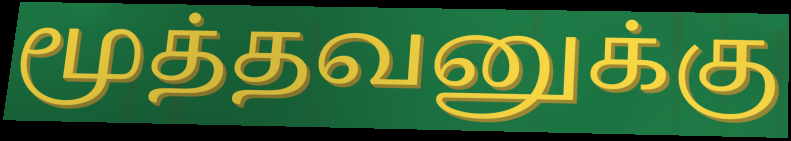
மூத்தவனுக்கு